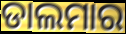
ଡାଲମାର